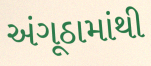
અંગૂઠામાંથી